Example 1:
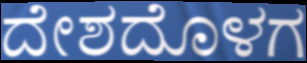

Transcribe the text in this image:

ದೇಶದೊಳಗ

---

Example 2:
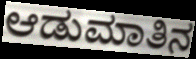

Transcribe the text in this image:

ಆಡುಮಾತಿನ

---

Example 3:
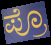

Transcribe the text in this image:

ಪ್ರೊ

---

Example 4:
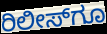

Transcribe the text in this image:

ರಿಲೀಸ್‌ಗೂ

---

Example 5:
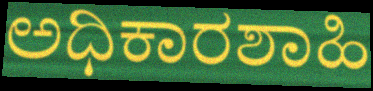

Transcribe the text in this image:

ಅಧಿಕಾರಶಾಹಿ